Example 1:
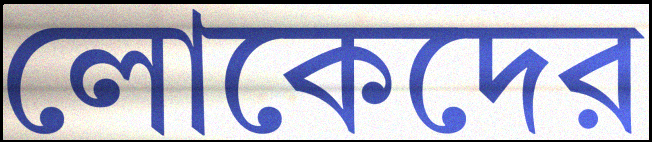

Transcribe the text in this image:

লোকেদের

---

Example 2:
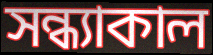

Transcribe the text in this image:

সন্ধ্যাকাল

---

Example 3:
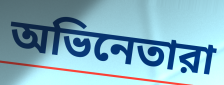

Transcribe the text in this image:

অভিনেতারা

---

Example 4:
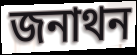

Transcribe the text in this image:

জনাথন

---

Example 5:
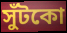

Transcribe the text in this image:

সুঁটকো